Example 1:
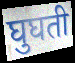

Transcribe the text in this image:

घुघती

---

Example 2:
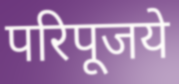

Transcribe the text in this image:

परिपूजये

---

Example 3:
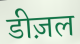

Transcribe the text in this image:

डीज़ल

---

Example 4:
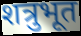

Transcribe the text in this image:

शत्रुभूत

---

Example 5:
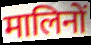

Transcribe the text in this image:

मालिनों